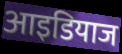
आइडियाज